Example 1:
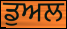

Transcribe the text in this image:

ਡੁਅਲ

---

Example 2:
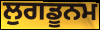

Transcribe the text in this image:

ਲੁਗਡੂਨਮ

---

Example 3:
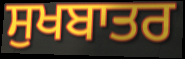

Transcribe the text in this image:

ਸੁਖਬਾਤਰ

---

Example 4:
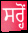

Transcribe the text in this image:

ਸਰ੍ਹੋਂ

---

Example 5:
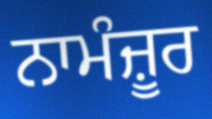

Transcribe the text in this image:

ਨਾਮੰਜ਼ੂਰ